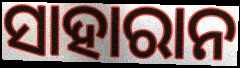
ସାହାରାନ